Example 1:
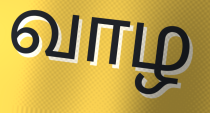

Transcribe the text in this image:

வாழ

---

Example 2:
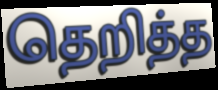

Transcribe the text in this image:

தெறித்த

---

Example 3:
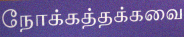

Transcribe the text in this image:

நோக்கத்தக்கவை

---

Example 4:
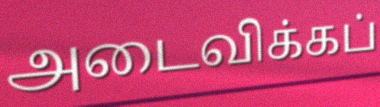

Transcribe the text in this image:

அடைவிக்கப்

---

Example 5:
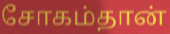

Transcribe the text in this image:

சோகம்தான்